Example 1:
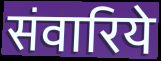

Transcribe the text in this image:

संवारिये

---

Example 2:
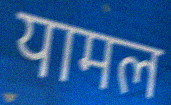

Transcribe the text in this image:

यामल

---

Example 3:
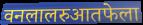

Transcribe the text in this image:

वनलालरुआतफेला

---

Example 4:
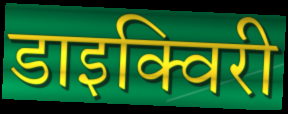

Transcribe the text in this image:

डाइक्विरी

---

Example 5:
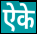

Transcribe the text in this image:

ऐके